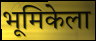
भूमिकेला